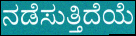
ನಡೆಸುತ್ತಿದೆಯೆ